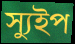
স্যুইপ